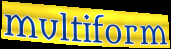
multiform